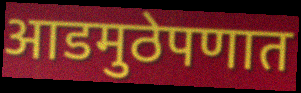
आडमुठेपणात